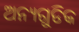
ଅନ୍ୟଗୁଡିକ